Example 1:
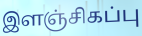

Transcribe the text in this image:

இளஞ்சிகப்பு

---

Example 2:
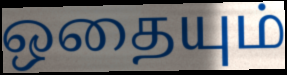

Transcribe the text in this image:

ஒதையும்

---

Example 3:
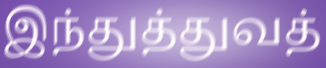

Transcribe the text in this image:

இந்துத்துவத்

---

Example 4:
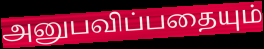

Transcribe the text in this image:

அனுபவிப்பதையும்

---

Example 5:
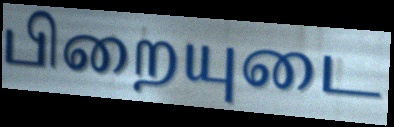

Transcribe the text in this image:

பிறையுடை